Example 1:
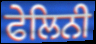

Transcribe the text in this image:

ਫੇਲਿਨੀ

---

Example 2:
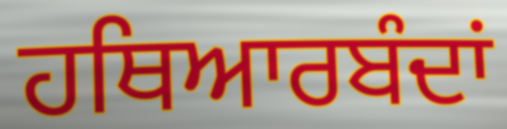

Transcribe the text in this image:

ਹਥਿਆਰਬੰਦਾਂ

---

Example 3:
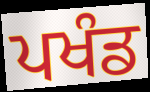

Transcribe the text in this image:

ਪਖੰਡ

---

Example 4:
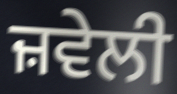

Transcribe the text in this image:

ਜ਼ਵੇਲੀ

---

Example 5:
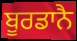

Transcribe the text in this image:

ਬੂਰਡਾਨੈ